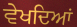
ਵੇਖਦਿਆਂ